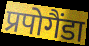
प्रपोगैंडा